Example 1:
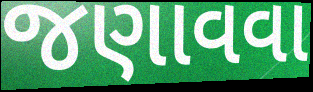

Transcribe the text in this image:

જણાવવા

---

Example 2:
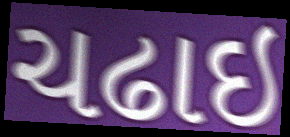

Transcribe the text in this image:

ચઢાઇ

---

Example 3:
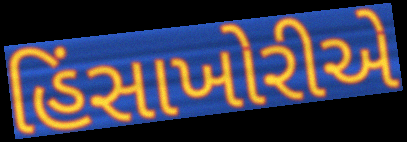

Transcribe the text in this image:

હિંસાખોરીએ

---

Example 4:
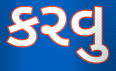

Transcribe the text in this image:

કરવુ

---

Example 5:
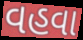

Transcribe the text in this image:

વહવા